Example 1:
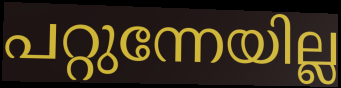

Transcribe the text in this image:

പറ്റുന്നേയില്ല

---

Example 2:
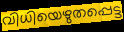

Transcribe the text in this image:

വിധിയെഴുതപ്പെട്ട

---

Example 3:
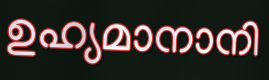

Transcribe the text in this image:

ഉഹ്യമാനാനി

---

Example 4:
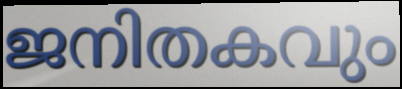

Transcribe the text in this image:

ജനിതകവും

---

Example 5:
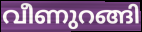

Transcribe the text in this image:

വീണുറങ്ങി